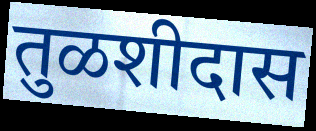
तुळशीदास